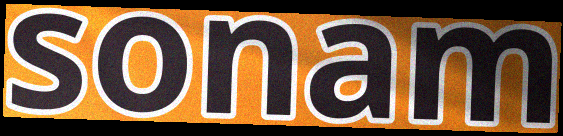
sonam